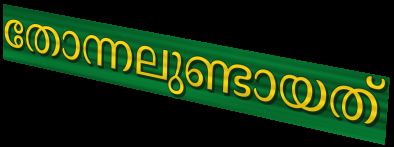
തോന്നലുണ്ടായത്